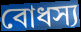
বোধস্য